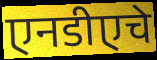
एनडीएचे